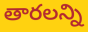
తారలన్ని